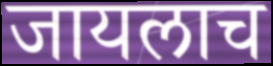
जायलाच